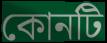
কোনটি